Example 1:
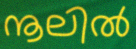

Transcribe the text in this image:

നൂലിൽ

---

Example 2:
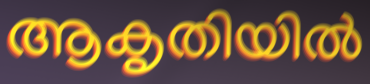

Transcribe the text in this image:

ആകൃതിയിൽ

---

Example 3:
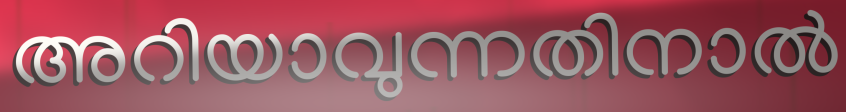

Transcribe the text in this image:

അറിയാവുന്നതിനാൽ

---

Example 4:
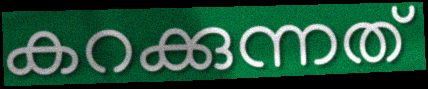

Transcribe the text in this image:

കറക്കുന്നത്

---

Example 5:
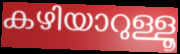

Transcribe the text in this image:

കഴിയാറുള്ളൂ